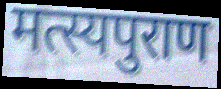
मत्स्यपुराण